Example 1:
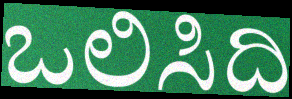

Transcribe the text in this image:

ಒಲಿಸಿದಿ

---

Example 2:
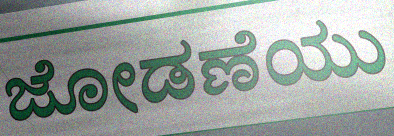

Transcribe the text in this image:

ಜೋಡಣೆಯು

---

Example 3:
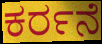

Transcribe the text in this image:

ಕರ್ರನೆ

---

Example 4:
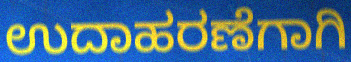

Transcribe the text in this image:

ಉದಾಹರಣೆಗಾಗಿ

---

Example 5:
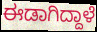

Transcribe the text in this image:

ಈಡಾಗಿದ್ದಾಳೆ